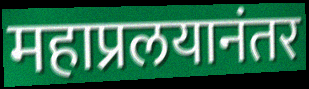
महाप्रलयानंतर